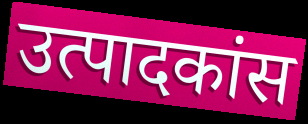
उत्पादकांस